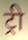
ट्री